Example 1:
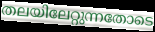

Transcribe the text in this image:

തലയിലേറ്റുന്നതോടെ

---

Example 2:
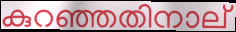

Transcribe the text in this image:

കുറഞ്ഞതിനാല്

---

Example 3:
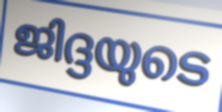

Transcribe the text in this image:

ജിദ്ദയുടെ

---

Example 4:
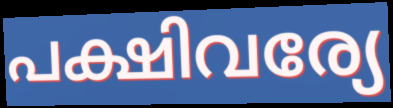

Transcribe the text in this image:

പക്ഷിവര്യേ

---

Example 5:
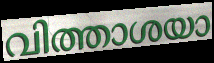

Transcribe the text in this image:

വിത്താശയാ